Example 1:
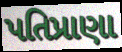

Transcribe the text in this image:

પતિપ્રાણા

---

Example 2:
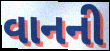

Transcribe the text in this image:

વાનની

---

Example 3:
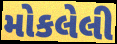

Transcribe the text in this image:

મોકલેલી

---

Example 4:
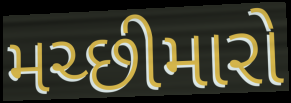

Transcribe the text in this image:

મચ્છીમારો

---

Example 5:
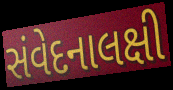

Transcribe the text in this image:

સંવેદનાલક્ષી